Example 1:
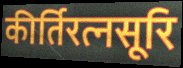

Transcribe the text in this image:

कीर्तिरत्नसूरि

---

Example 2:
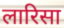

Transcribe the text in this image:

लारिसा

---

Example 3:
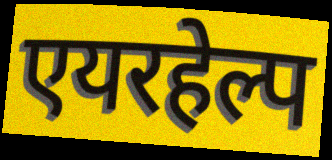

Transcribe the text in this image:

एयरहेल्प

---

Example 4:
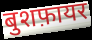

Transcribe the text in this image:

बुशफ़ायर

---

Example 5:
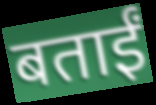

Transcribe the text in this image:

बताईं